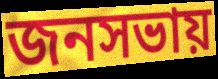
জনসভায়